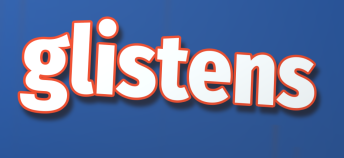
glistens